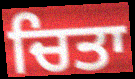
ਚਿਤਾ